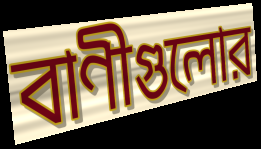
বাণীগুলোর